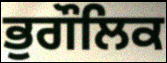
ਭੁਗੌਲਿਕ